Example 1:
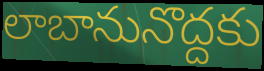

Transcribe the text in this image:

లాబానునొద్దకు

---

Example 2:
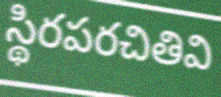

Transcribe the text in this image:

స్థిరపరచితివి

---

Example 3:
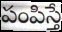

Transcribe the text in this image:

పంపిస్తే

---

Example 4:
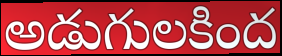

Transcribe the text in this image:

అడుగులకింద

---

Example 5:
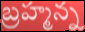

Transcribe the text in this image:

బ్రహ్మన్న